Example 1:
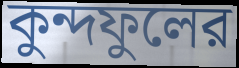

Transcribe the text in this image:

কুন্দফুলের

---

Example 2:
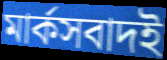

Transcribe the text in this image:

মার্কসবাদই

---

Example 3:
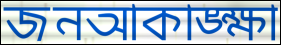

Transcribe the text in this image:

জনআকাঙ্ক্ষা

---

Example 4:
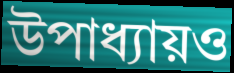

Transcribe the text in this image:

উপাধ্যায়ও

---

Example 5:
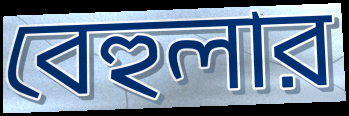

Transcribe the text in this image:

বেহুলার